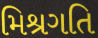
મિશ્રગતિ